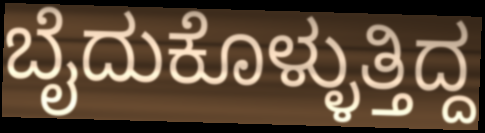
ಬೈದುಕೊಳ್ಳುತ್ತಿದ್ದ